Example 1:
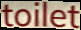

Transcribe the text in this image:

toilet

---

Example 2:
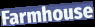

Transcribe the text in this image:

Farmhouse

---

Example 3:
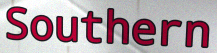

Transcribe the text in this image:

Southern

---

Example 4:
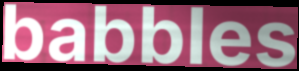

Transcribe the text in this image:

babbles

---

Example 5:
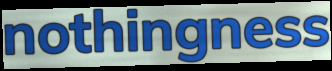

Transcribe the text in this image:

nothingness